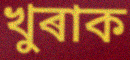
খুৰাক